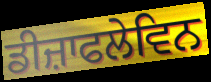
ਡੀਜ਼ਾਫਲੇਵਿਨ